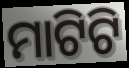
ମାଟିଟି